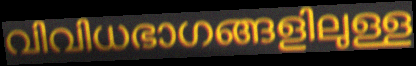
വിവിധഭാഗങ്ങളിലുള്ള